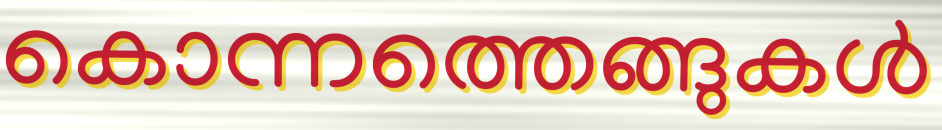
കൊന്നത്തെങ്ങുകൾ